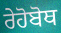
ਰੇਹੋਬੋਥ